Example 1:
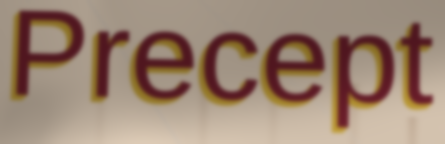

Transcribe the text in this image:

Precept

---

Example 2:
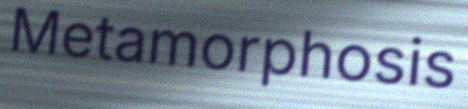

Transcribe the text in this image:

Metamorphosis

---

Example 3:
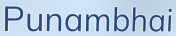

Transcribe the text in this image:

Punambhai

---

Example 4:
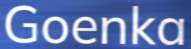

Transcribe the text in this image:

Goenka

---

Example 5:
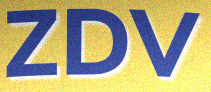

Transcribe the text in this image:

ZDV